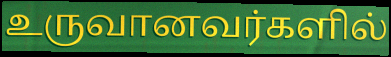
உருவானவர்களில்